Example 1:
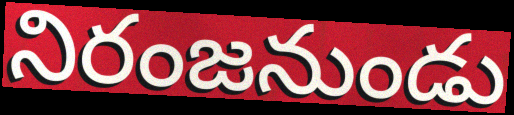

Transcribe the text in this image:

నిరంజనుండు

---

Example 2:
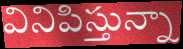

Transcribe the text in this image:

వినిపిస్తున్నా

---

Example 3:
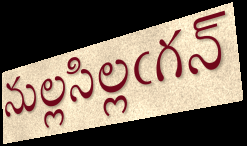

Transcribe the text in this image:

నుల్లసిల్లఁగన్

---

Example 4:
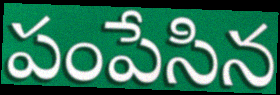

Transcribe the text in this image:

పంపేసిన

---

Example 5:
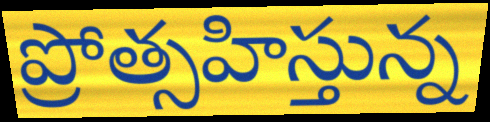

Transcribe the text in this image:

ప్రోత్సహిస్తున్న